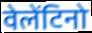
वेलेंटिनो